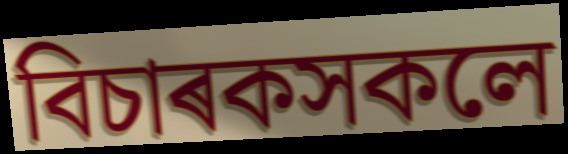
বিচাৰকসকলে